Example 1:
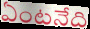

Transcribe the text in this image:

ఏంటనేది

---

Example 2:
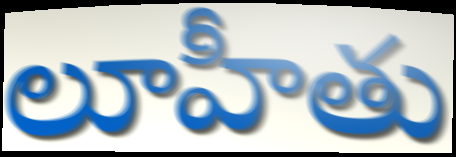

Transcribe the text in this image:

లూహీతు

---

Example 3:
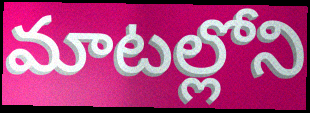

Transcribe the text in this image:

మాటల్లోని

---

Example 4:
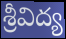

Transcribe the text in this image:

శ్రీవిద్య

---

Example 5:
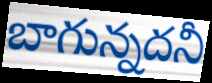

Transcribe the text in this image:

బాగున్నదనీ